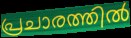
പ്രചാരത്തിൽ